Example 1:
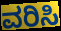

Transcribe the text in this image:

ವರಿಸಿ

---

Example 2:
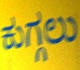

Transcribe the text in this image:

ಕುಗ್ಗಲು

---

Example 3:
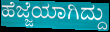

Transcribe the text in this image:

ಹೆಜ್ಜೆಯಾಗಿದ್ದು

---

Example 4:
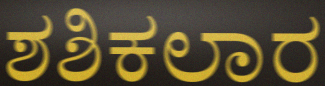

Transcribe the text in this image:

ಶಶಿಕಲಾರ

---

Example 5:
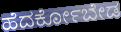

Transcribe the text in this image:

ಹೆದರ್ಕೋಬೇಡ